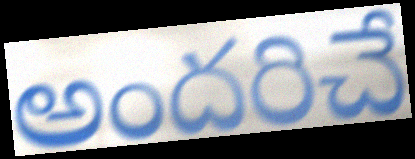
అందరిచే